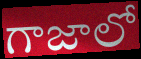
గాజాలో